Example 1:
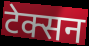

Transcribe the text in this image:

टेक्सन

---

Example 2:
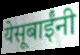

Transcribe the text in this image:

येसूबाईंनी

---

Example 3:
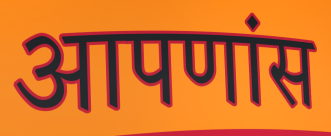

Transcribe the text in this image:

आपणांस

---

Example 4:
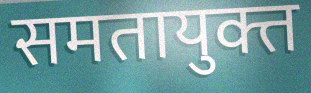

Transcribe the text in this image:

समतायुक्त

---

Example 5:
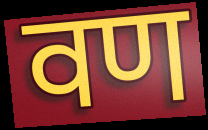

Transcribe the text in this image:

वण